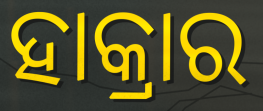
ହାକ୍ରାର